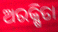
ଅରକ୍ଷିତା